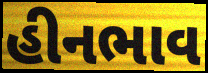
હીનભાવ